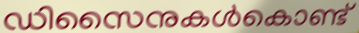
ഡിസൈനുകൾകൊണ്ട്